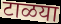
टाळया